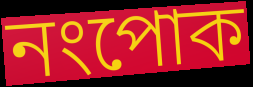
নংপোক